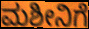
ಮಶೀನಿಗೆ